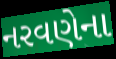
નરવણેના